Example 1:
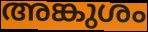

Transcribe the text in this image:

അങ്കുശം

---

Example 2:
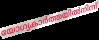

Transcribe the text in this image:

യോഗ്യകാർത്തയിൽനിന്ന്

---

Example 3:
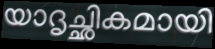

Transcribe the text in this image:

യാദൃച്ഛികമായി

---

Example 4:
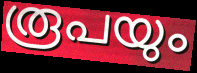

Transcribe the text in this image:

രൂപയും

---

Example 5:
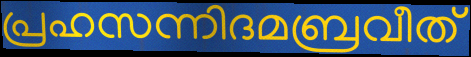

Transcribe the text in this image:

പ്രഹസന്നിദമബ്രവീത്